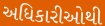
અધિકારીઓથી